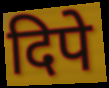
दिपे